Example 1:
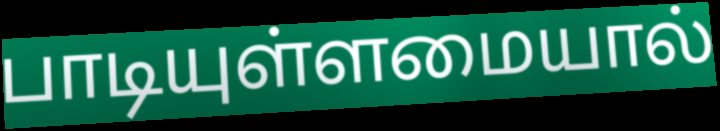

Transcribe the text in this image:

பாடியுள்ளமையால்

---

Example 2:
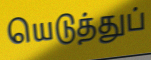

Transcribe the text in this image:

யெடுத்துப்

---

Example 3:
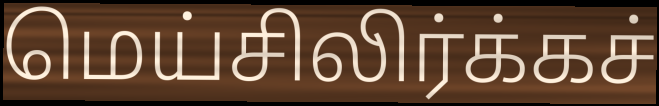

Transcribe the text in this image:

மெய்சிலிர்க்கச்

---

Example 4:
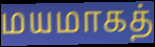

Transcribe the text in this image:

மயமாகத்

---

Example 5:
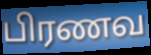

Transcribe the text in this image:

பிரணவ